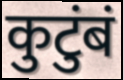
कुटुंबं